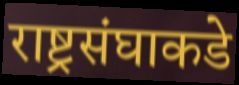
राष्ट्रसंघाकडे